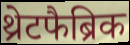
थ्रेटफैब्रिक